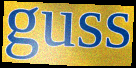
guss